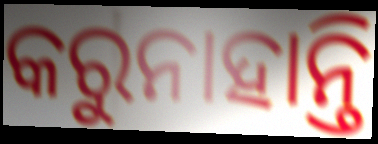
କରୁନାହାନ୍ତି